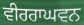
ਵੀਰਰਾਘਵਨ